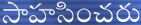
సాహసించరు